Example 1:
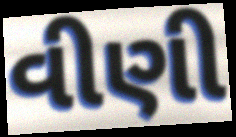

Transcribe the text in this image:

વીણી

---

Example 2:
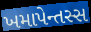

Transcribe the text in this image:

ખમાપેન્તસ્સ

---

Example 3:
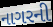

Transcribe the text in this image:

નાગરની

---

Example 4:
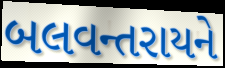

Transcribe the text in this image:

બલવન્તરાયને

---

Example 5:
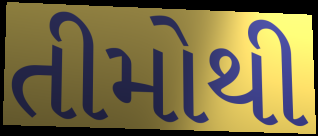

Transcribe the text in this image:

તીમોથી